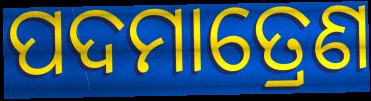
ପଦମାତ୍ରେଣ